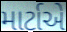
માર્ટાએ